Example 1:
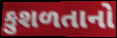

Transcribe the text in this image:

કુશળતાનો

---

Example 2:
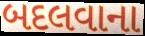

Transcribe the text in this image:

બદલવાના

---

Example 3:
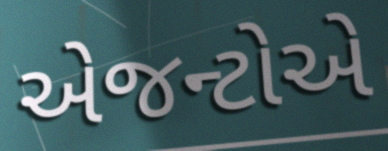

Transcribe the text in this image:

એજન્ટોએ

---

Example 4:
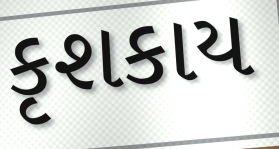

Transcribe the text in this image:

કૃશકાય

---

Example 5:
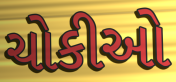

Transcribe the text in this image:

ચોકીઓ